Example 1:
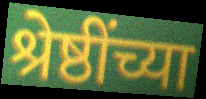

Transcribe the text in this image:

श्रेष्ठींच्या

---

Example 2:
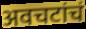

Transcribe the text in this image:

अवचटांचं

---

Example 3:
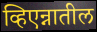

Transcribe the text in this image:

व्हिएन्नातील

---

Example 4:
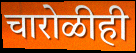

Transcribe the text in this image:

चारोळीही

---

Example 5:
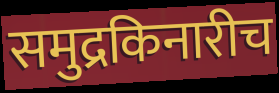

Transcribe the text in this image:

समुद्रकिनारीच